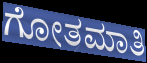
ಗೋತಮಾತಿ